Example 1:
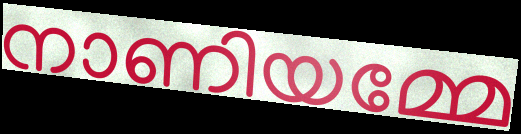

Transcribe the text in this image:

നാണിയമ്മേ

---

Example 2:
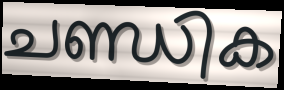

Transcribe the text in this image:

ചണ്ഡിക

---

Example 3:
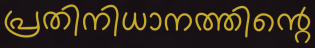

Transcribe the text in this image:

പ്രതിനിധാനത്തിന്റെ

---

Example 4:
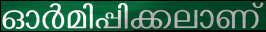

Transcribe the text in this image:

ഓർമിപ്പിക്കലാണ്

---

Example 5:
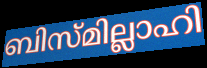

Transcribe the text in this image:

ബിസ്മില്ലാഹി